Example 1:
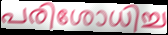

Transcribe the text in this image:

പരിശോധിച്ച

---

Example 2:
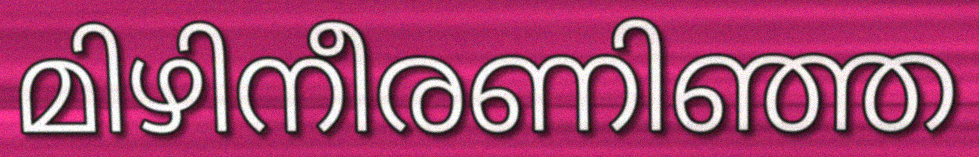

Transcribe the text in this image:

മിഴിനീരണിഞ്ഞ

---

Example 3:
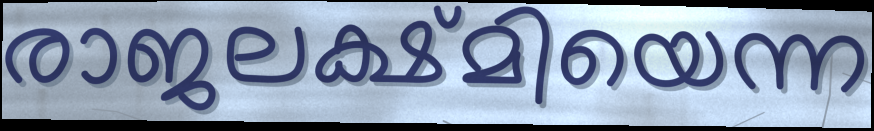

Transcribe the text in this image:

രാജലക്ഷ്മിയെന്ന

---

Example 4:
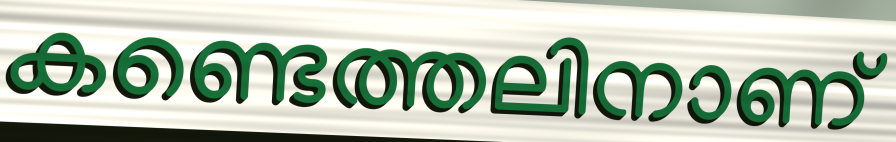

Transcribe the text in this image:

കണ്ടെത്തലിനാണ്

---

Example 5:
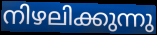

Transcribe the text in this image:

നിഴലിക്കുന്നു